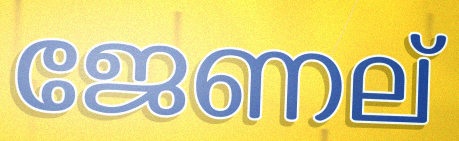
ജേണല്